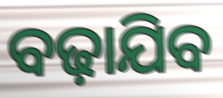
ବଢ଼ାଯିବ